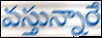
వస్తున్నారే